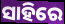
ସାହିରେ